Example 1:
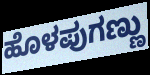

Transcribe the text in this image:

ಹೊಳಪುಗಣ್ಣು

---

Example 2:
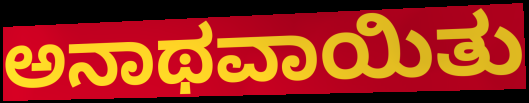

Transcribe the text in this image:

ಅನಾಥವಾಯಿತು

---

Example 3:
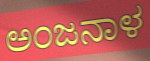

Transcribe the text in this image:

ಅಂಜನಾಳ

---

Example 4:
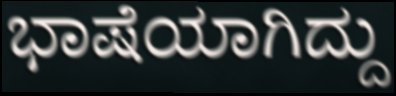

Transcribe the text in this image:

ಭಾಷೆಯಾಗಿದ್ದು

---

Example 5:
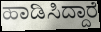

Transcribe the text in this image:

ಹಾಡಿಸಿದ್ದಾರೆ